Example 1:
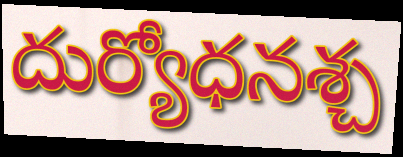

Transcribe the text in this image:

దుర్యోధనశ్చ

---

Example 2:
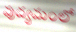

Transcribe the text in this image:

వుద్యమంలో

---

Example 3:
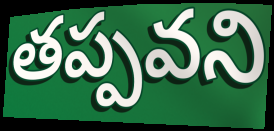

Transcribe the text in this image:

తప్పవని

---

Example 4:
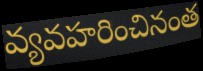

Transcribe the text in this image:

వ్యవహరించినంత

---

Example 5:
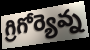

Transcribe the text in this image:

గ్రిగోర్యెవ్న